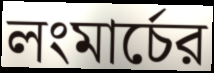
লংমার্চের